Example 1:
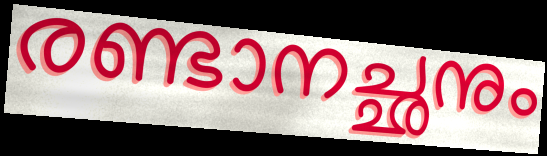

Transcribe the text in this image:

രണ്ടാനച്ഛനും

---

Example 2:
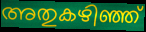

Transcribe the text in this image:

അതുകഴിഞ്ഞ്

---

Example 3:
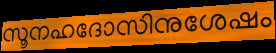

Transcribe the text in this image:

സൂനഹദോസിനുശേഷം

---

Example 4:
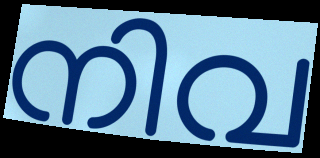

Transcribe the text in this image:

നിവ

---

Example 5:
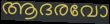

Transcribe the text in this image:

ആദരവോ